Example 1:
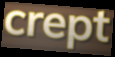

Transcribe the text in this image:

crept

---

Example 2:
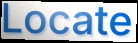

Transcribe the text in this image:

Locate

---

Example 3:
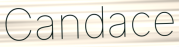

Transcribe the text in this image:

Candace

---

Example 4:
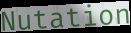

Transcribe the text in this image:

Nutation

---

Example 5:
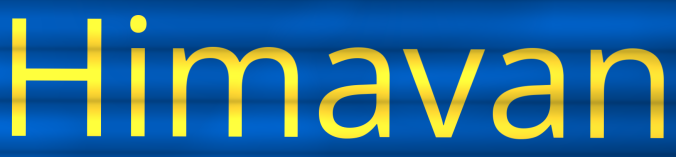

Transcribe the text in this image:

Himavan